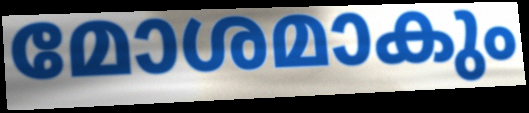
മോശമാകും